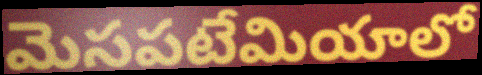
మెసపటేమియాలో